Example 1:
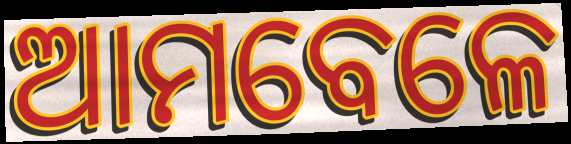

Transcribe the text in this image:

ଆମବେଳେ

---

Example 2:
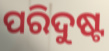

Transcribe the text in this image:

ପରିଦୁଷ୍ଟ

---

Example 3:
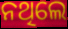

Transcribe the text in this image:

ନଥିଲେ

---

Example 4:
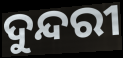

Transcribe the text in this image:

ଦୁନ୍ଦରୀ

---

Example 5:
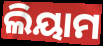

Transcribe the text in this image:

ଲିୟାମ